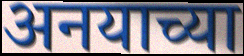
अनयाच्या